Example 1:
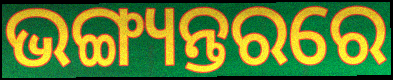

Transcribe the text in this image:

ଭଙ୍ଗ୍ୟନ୍ତରରେ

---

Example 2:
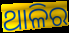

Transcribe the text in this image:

ଥାଳିର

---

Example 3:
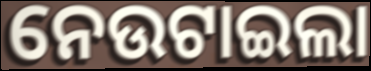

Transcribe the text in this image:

ନେଉଟାଇଲା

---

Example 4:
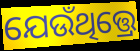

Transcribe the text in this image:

ଯେଉଁଥିତ୍ତ୍ରେ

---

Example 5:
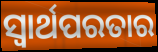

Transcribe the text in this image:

ସ୍ଵାର୍ଥପରତାର